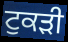
ਟੁਕਡ਼ੀ